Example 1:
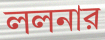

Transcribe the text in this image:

ললনার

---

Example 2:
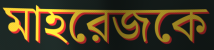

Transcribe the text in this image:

মাহরেজকে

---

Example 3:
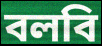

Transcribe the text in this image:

বলবি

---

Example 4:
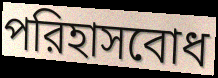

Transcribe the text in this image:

পরিহাসবোধ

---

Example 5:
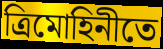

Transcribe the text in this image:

ত্রিমোহিনীতে